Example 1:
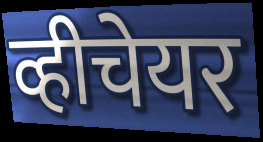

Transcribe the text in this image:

व्हीचेयर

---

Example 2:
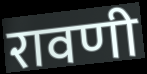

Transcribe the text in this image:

रावणी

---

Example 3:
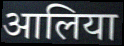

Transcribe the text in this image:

आलिया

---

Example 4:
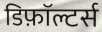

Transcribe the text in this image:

डिफ़ॉल्टर्स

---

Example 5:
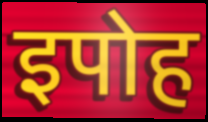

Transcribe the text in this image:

इपोह